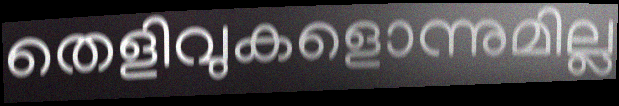
തെളിവുകളൊന്നുമില്ല